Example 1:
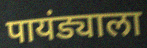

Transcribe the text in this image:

पायंड्याला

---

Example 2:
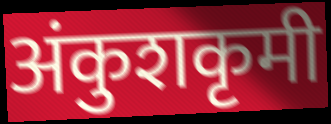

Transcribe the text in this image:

अंकुशकृमी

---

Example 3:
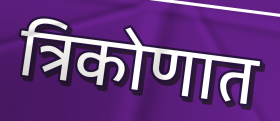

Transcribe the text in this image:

त्रिकोणात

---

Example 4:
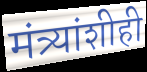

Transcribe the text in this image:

मंत्र्यांशीही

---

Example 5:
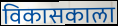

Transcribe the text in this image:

विकासकाला